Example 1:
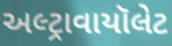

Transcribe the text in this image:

અલ્ટ્રાવાયૉલેટ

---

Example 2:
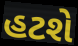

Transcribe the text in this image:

હટશે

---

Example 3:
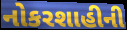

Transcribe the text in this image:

નોકરશાહીની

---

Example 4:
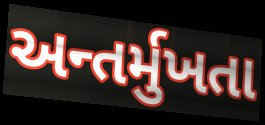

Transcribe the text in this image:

અન્તર્મુખતા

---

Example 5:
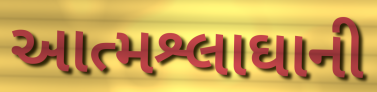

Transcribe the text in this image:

આત્મશ્લાઘાની